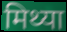
मिथ्या